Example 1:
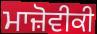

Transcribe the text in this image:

ਮਾਜ਼ੋਵੀਕੀ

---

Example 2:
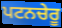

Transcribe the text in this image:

ਪਟਨਚੇਰੂ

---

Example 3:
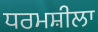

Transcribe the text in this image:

ਧਰਮਸ਼ੀਲਾ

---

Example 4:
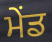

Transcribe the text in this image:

ਮੇਂਡ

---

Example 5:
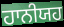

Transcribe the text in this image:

ਹਾਨੀਯਹ